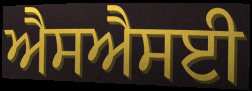
ਐਸਐਸਈ